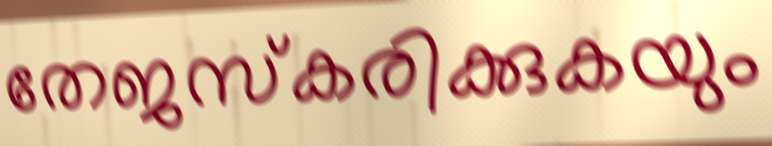
തേജസ്കരിക്കുകയും